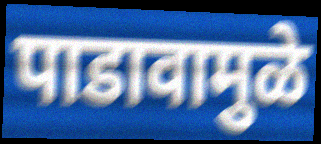
पाडावामुळे